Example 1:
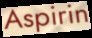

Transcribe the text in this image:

Aspirin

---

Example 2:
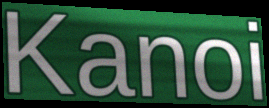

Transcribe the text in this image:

Kanoi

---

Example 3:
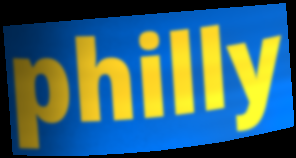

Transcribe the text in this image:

philly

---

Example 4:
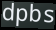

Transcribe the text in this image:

dpbs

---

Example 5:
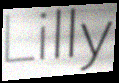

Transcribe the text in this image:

Lilly